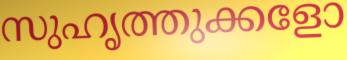
സുഹൃത്തുക്കളോ